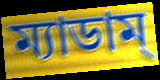
ম্যাডাম্